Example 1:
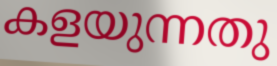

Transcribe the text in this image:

കളയുന്നതു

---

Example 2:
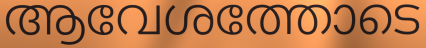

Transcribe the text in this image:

ആവേശത്തോടെ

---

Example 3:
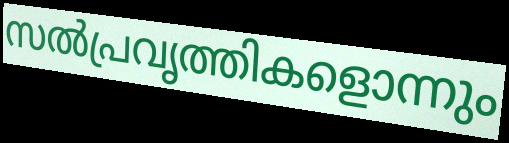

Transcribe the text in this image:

സൽപ്രവൃത്തികളൊന്നും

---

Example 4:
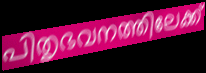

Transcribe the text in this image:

പിതൃഭവനത്തിലേക്ക്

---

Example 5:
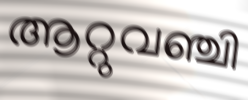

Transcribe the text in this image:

ആറ്റുവഞ്ചി